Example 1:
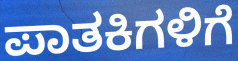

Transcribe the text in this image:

ಪಾತಕಿಗಳಿಗೆ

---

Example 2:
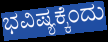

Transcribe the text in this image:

ಭವಿಷ್ಯಕ್ಕೆಂದು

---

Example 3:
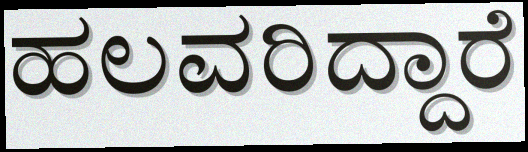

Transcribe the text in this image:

ಹಲವರಿದ್ದಾರೆ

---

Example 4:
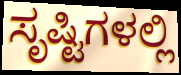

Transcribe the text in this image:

ಸೃಷ್ಟಿಗಳಲ್ಲಿ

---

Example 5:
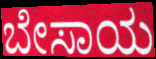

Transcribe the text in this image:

ಬೇಸಾಯ